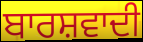
ਬਾਰਸ਼ਵਾਦੀ